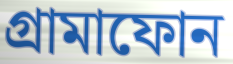
গ্রামাফোন